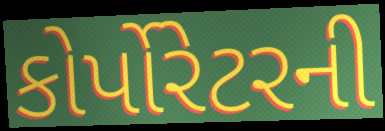
કોર્પોરેટરની